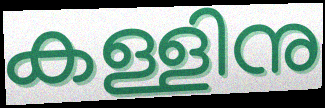
കള്ളിനു